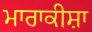
ਮਾਰਾਕੀਸ਼ਾ